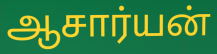
ஆசார்யன்